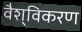
वैश्विकरण